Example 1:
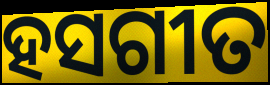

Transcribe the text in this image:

ହସଗୀତ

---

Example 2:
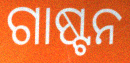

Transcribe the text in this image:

ଗାଷ୍ଟନ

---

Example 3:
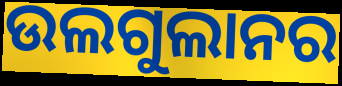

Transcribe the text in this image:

ଉଲଗୁଲାନର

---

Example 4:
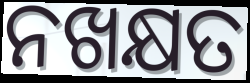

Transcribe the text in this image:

ନଖକ୍ଷତ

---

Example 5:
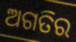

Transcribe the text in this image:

ଅଗତିର